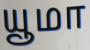
யூமா